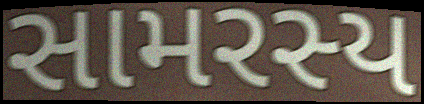
સામરસ્ય